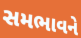
સમભાવને